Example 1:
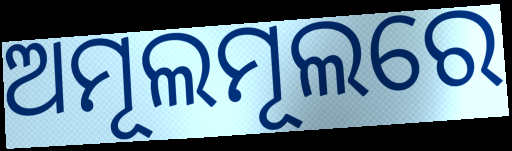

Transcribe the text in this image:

ଅମୂଲମୂଲରେ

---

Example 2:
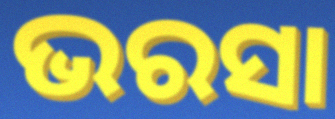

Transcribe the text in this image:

ଭରସା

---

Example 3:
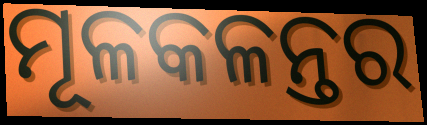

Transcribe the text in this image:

ମୂଳକଳନ୍ତର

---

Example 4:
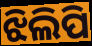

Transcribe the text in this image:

ଝିଲିପି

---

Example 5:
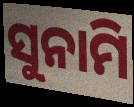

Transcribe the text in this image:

ସୁନାମି